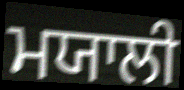
ਮਯਾਲੀ